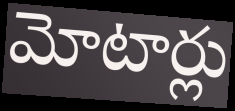
మోటార్లు